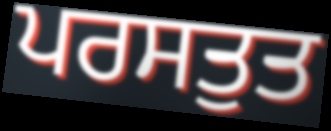
ਪਰਸਤੁਤ